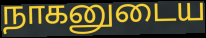
நாகனுடைய